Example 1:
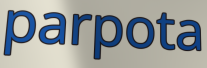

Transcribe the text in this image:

parpota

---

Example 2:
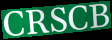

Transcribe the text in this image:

CRSCB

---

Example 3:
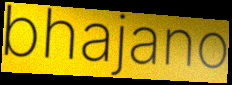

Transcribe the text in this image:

bhajano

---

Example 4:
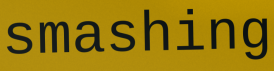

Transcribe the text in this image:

smashing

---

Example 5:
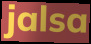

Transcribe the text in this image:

jalsa